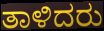
ತಾಳಿದರು